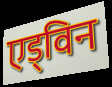
एड्विन